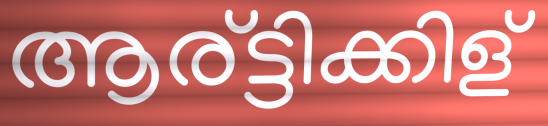
ആര്ട്ടിക്കിള്